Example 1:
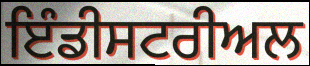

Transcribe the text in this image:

ਇੰਡੀਸਟਰੀਅਲ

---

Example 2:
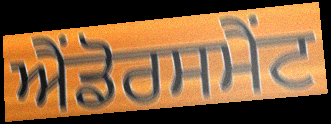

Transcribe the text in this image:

ਐਂਡੋਰਸਮੈਂਟ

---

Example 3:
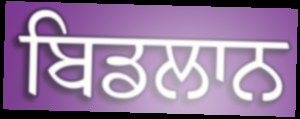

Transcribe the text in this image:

ਬਿਡਲਾਨ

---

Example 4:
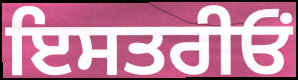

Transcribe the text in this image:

ਇਸਤਰੀਓਂ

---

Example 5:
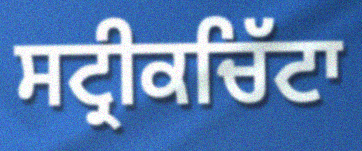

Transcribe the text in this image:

ਸਟ੍ਰੀਕਚਿੱਟਾ